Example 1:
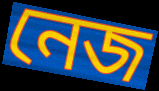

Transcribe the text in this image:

নেজ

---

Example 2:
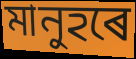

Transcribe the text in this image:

মানুহৰে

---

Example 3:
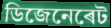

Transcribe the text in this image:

ডিজেনেৰেট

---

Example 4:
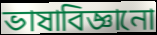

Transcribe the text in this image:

ভাষাবিজ্ঞানো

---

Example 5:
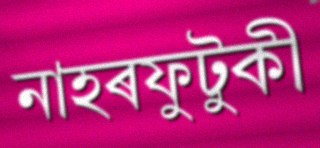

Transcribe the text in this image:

নাহৰফুটুকী